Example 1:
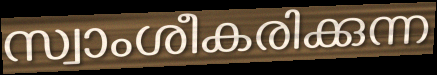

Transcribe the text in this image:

സ്വാംശീകരിക്കുന്ന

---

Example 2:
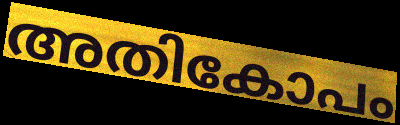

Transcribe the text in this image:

അതികോപം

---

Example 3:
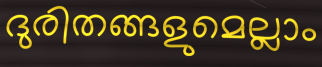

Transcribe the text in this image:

ദുരിതങ്ങളുമെല്ലാം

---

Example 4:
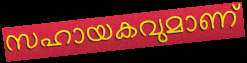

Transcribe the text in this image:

സഹായകവുമാണ്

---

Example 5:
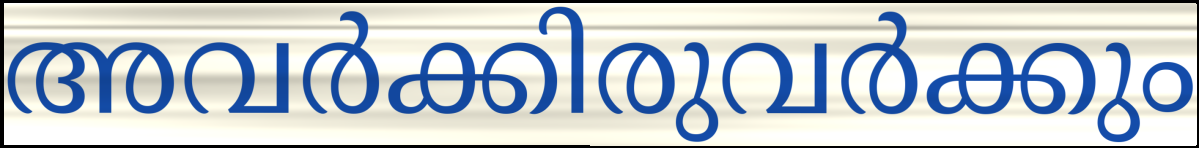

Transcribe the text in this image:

അവർക്കിരുവർക്കും